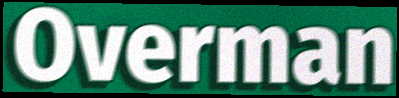
Overman